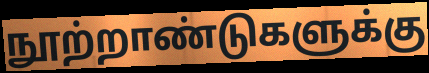
நூற்றாண்டுகளுக்கு